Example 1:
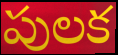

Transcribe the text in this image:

పులక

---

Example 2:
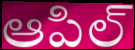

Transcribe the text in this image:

ఆపిల్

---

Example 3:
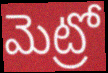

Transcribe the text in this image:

మెట్రో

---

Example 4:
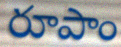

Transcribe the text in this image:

రూపాం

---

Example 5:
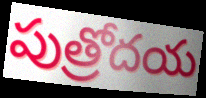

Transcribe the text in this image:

పుత్రోదయ